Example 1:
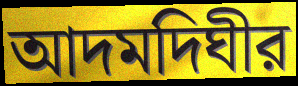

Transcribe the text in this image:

আদমদিঘীর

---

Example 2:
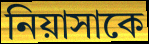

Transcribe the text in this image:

নিয়াসাকে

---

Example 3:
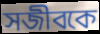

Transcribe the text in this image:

সজীবকে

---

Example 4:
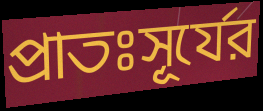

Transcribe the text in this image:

প্রাতঃসূর্যের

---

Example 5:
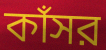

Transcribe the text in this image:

কাঁসর